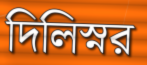
দিলিস্নর